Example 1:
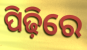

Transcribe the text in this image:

ପିଢ଼ିରେ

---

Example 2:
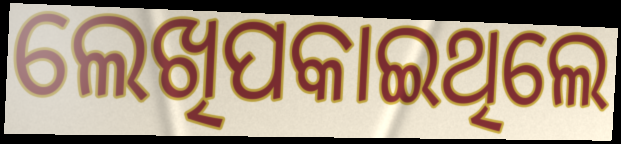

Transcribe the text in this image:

ଲେଖିପକାଇଥିଲେ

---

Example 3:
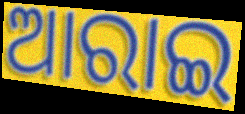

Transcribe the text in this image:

ଆରାଇ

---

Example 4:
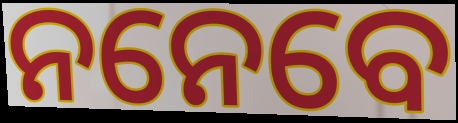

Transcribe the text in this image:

ନନେବେ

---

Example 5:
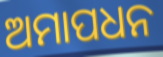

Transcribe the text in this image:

ଅମାପଧନ